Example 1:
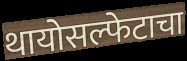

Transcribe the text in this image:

थायोसल्फेटाचा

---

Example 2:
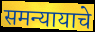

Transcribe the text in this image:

समन्यायाचे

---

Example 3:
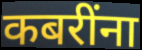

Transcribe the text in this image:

कबरींना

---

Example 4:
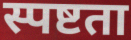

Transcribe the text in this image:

स्पष्टता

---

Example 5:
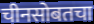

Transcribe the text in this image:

चीनसोबतचा